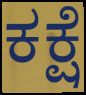
ಕಕ್ಷೆ